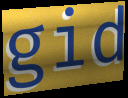
gid